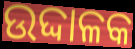
ଉଦ୍ଦାଳକ